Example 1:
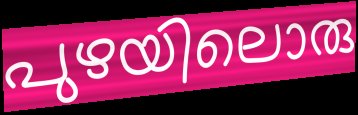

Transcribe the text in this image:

പുഴയിലൊരു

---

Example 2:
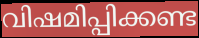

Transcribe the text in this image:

വിഷമിപ്പിക്കണ്ട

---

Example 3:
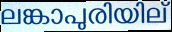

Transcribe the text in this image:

ലങ്കാപുരിയില്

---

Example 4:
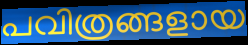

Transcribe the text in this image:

പവിത്രങ്ങളായ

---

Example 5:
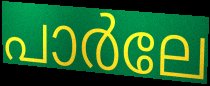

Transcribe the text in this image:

പാർലേ